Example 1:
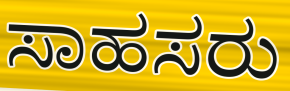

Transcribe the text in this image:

ಸಾಹಸರು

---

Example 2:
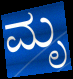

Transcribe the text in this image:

ಮೃ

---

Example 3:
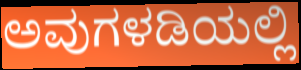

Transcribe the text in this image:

ಅವುಗಳಡಿಯಲ್ಲಿ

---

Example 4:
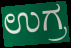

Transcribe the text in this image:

ಉಗ್ರ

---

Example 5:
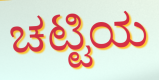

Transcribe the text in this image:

ಚಟ್ಟಿಯ